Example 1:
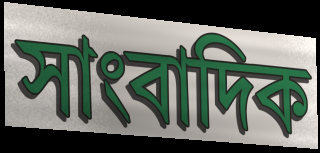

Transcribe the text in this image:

সাংবাদিক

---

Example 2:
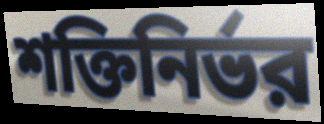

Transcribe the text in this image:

শক্তিনির্ভর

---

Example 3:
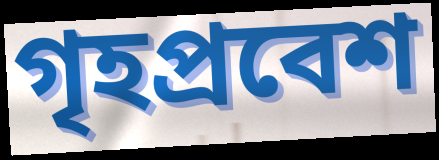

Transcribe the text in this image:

গৃহপ্রবেশ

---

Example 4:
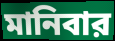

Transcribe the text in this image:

মানিবার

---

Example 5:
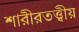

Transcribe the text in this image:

শারীরতত্ত্বীয়